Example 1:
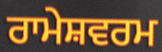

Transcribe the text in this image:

ਰਾਮੇਸ਼ਵਰਮ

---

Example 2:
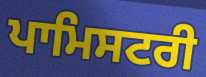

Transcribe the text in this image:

ਪਾਮਿਸਟਰੀ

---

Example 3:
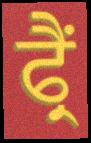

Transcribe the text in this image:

ਫ੍ਰੈਂ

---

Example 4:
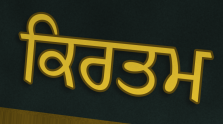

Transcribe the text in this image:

ਕਿਰਤਮ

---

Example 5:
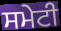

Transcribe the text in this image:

ਸਮੇਟੀ